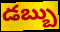
డబ్బు